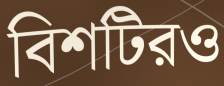
বিশটিরও